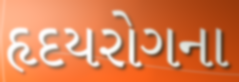
હૃદયરોગના